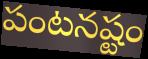
పంటనష్టం